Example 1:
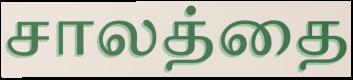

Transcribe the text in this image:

சாலத்தை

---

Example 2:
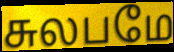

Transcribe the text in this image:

சுலபமே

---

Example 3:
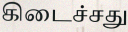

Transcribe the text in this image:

கிடைச்சது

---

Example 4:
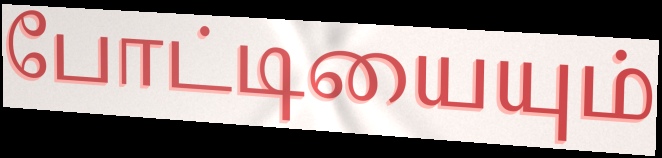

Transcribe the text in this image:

போட்டியையும்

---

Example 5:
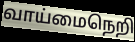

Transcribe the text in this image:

வாய்மைநெறி